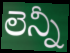
లెన్నీ